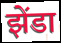
झेंडा